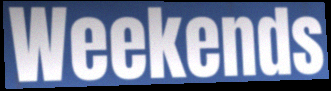
Weekends